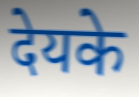
देयके